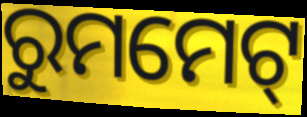
ରୁମମେଟ୍